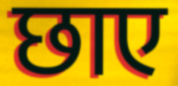
छाए